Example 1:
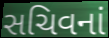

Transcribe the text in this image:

સચિવનાં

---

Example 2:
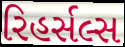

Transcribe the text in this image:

રિહર્સલ્સ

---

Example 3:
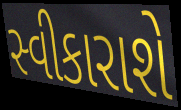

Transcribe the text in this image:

સ્વીકારાશે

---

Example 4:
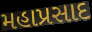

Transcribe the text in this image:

મહાપ્રસાદ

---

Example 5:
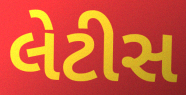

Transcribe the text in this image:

લેટીસ